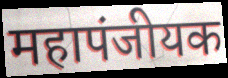
महापंजीयक